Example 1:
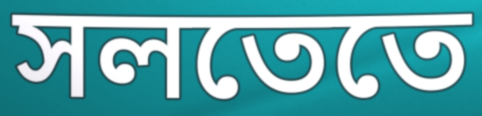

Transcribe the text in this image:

সলতেতে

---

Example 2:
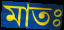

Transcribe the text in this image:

মাতঃ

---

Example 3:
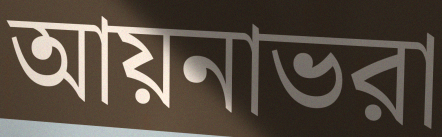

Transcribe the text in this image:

আয়নাভরা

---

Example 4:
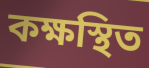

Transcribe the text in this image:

কক্ষস্থিত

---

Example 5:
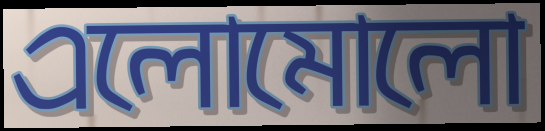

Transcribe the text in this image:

এলোমোলো